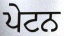
ਪੇਟਨ